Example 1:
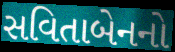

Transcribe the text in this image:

સવિતાબેનનો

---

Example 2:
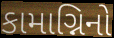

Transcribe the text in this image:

કામાગ્નિનો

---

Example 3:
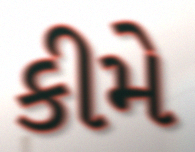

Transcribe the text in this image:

કીમે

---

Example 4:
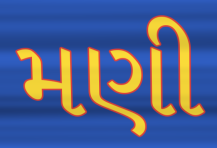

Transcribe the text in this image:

મણી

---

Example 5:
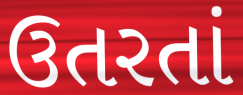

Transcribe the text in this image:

ઉતરતાં